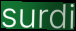
surdi